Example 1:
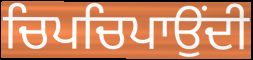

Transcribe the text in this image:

ਚਿਪਚਿਪਾਉਂਦੀ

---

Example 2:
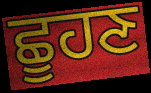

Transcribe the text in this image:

ਛੂਹਣ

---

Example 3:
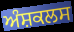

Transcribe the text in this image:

ਅੰਸ਼ਕਲਸ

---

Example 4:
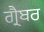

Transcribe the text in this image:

ਗ੍ਰੈਬਰ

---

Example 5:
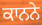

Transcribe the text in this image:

ਕਾਨਨੇ